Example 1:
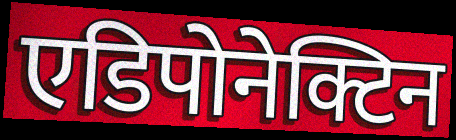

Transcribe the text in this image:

एडिपोनेक्टिन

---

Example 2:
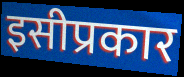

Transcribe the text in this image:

इसीप्रकार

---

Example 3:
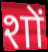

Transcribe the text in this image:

शों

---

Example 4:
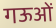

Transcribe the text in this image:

गऊओं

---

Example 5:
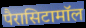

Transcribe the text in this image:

पैरासिटामॉल